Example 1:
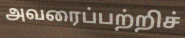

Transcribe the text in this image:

அவரைப்பற்றிச்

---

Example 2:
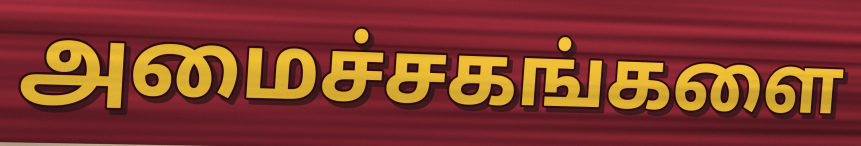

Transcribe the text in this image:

அமைச்சகங்களை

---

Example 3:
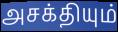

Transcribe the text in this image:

அசக்தியும்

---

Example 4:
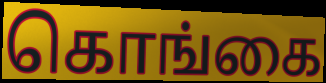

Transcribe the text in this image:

கொங்கை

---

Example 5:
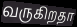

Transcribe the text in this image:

வருகிறதா